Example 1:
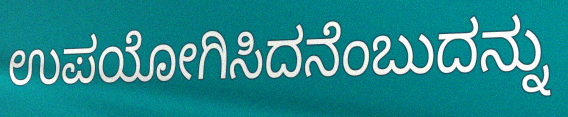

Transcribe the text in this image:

ಉಪಯೋಗಿಸಿದನೆಂಬುದನ್ನು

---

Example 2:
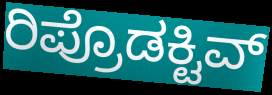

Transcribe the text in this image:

ರಿಪ್ರೊಡಕ್ಟಿವ್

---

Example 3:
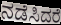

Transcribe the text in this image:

ನಡೆಸಿದರೆ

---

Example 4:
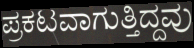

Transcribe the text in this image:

ಪ್ರಕಟವಾಗುತ್ತಿದ್ದವು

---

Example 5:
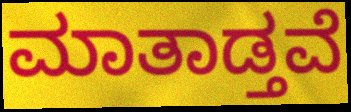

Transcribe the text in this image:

ಮಾತಾಡ್ತವೆ